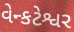
વેન્કટેશ્વર